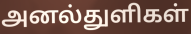
அனல்துளிகள்